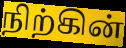
நிற்கின்